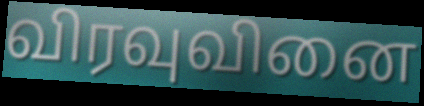
விரவுவினை